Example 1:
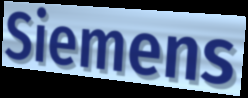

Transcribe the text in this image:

Siemens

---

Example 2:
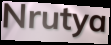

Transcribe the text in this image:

Nrutya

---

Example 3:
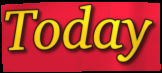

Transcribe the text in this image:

Today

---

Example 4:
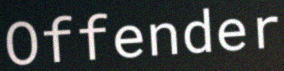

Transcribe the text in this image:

Offender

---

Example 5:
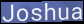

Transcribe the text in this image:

Joshua